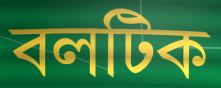
বলটিক